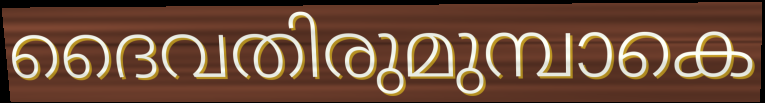
ദൈവതിരുമുമ്പാകെ